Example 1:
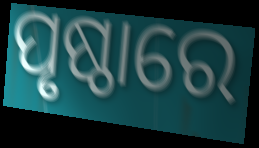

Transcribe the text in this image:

ପୃଷ୍ଠାରେ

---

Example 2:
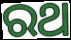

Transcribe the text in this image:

ରଥ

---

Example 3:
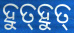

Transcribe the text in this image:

ହୁତ୍‌ହୁତ୍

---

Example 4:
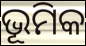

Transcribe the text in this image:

ଭୂମିକ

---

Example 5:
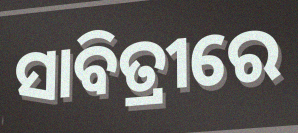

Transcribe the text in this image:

ସାବିତ୍ରୀରେ